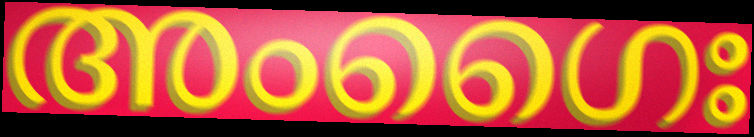
അംഗൈഃ